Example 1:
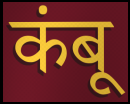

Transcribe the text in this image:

कंबू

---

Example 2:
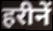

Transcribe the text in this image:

हरीनें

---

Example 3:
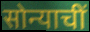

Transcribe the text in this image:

सोन्याचीं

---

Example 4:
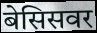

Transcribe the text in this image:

बेसिसवर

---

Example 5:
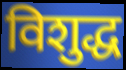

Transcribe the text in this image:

विशुद्ध